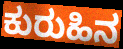
ಕುರುಹಿನ